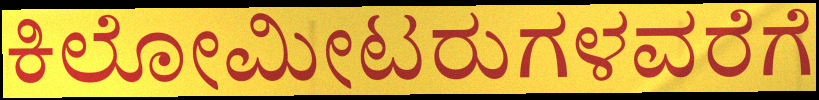
ಕಿಲೋಮೀಟರುಗಳವರೆಗೆ